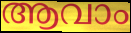
ആവാം